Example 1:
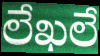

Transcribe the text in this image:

లేఖలే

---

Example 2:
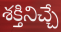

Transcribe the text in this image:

శక్తినిచ్చే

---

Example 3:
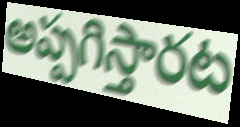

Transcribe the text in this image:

అప్పగిస్తారట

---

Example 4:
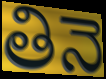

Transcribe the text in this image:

తినె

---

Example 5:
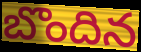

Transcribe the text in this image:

బొందిన